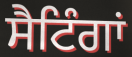
ਸੈਟਿੰਗਾਂ